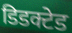
डिडक्टेड